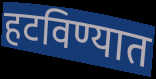
हटविण्यात